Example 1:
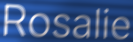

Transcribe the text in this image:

Rosalie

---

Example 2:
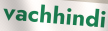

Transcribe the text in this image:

vachhindi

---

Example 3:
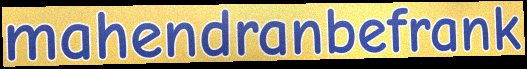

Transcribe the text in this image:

mahendranbefrank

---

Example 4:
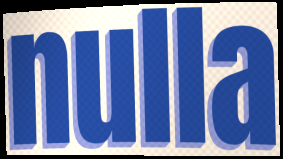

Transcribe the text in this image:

nulla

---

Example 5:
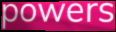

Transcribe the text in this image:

powers